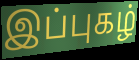
இப்புகழ்